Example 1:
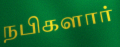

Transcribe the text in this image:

நபிகளார்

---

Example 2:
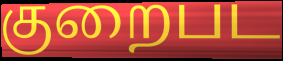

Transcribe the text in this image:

குறைபட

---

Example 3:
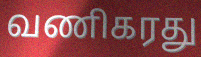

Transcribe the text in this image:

வணிகரது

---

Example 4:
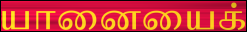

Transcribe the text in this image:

யானையைக்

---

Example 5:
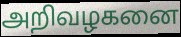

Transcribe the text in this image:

அறிவழகனை